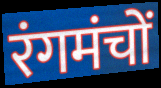
रंगमंचों